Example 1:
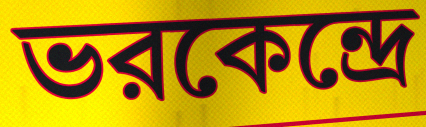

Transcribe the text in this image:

ভরকেন্দ্রে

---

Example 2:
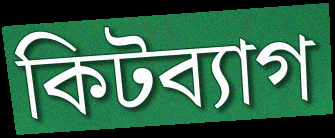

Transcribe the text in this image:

কিটব্যাগ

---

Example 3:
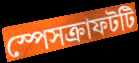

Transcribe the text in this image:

স্পেসক্রাফটটি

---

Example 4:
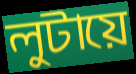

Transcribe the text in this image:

লুটায়ে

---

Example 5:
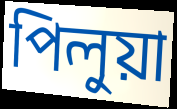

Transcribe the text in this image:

পিলুয়া